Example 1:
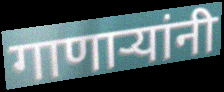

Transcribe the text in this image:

गाणाऱ्यांनी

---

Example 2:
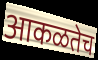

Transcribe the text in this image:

आकळतेच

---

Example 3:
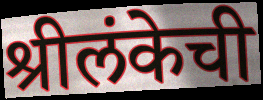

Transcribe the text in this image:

श्रीलंकेची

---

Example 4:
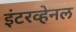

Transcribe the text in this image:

इंटरव्हेनल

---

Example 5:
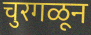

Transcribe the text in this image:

चुरगळून